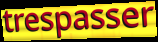
trespasser